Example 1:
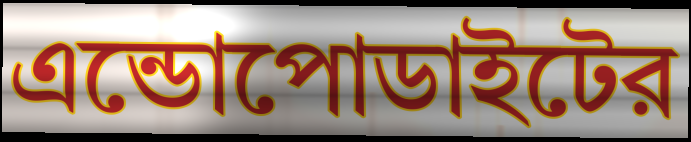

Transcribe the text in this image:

এন্ডোপোডাইটের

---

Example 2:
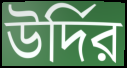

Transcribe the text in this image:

উর্দির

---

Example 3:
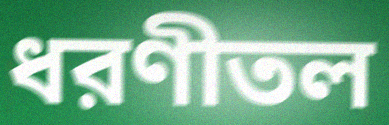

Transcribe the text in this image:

ধরণীতল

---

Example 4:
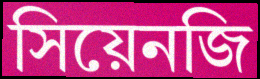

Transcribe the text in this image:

সিয়েনজি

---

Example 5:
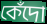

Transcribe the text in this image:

কেঁদো